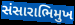
સંસારાભિમુખ